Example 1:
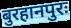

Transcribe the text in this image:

बुरहानपुरः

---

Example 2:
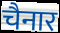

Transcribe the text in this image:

चैनार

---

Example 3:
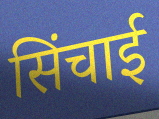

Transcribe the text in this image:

सिंचाई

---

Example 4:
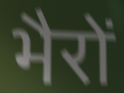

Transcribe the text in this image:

भैरों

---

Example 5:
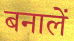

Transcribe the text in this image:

बनालें